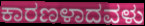
ಕಾರಣಳಾದವಳು